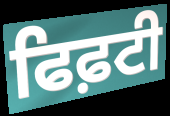
ਫਿਫ਼ਟੀ